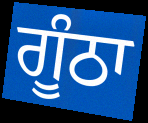
ਗੂੰਠਾ